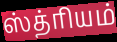
ஸ்த்ரியம்